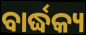
ବାର୍ଦ୍ଧକ୍ୟ